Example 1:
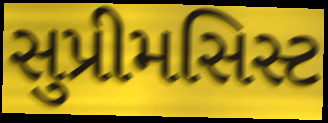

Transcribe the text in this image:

સુપ્રીમસિસ્ટ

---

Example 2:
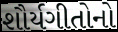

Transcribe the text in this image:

શૌર્યગીતોનો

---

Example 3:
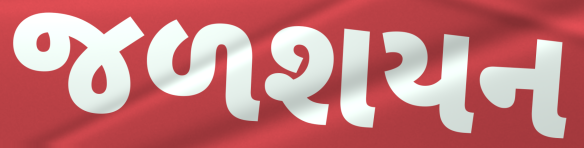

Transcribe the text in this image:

જળશયન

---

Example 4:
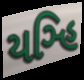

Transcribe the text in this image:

યઞ્હિ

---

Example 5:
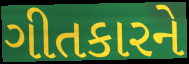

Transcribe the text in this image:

ગીતકારને